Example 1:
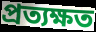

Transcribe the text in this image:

প্রত্যক্ষত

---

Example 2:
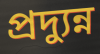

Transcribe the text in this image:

প্রদ্যুন্ন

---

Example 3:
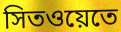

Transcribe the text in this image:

সিতওয়েতে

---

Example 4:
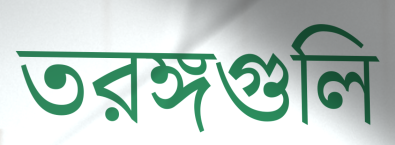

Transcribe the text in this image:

তরঙ্গগুলি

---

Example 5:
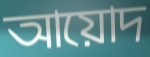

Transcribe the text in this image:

আয়োদ